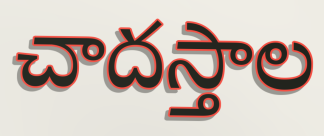
చాదస్తాల